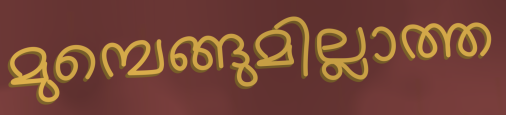
മുമ്പെങ്ങുമില്ലാത്ത